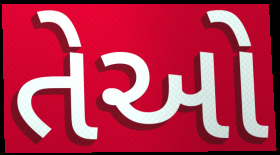
તેઓે